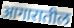
आगारातील